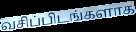
வசிப்பிடங்களாக